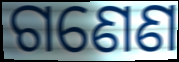
ଗଣେଣ